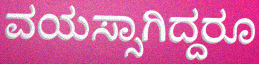
ವಯಸ್ಸಾಗಿದ್ದರೂ